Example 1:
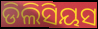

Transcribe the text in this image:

ଡିଲିସିୟସ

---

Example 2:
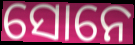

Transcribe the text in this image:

ସୋନେ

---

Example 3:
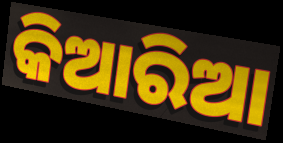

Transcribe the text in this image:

କିଆରିଆ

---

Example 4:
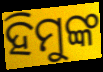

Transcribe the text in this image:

ହିମୁଙ୍କ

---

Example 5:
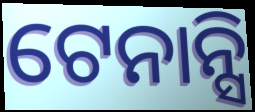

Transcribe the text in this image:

ଟେନାନ୍ସି